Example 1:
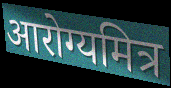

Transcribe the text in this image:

आरोग्यमित्र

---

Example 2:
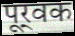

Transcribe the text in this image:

पूर्वक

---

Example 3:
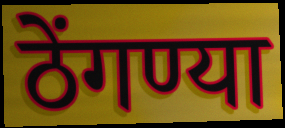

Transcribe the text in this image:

ठेंगण्या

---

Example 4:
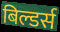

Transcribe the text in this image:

बिल्डर्स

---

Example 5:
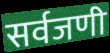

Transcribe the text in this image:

सर्वजणी